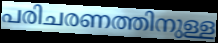
പരിചരണത്തിനുള്ള